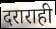
दराराही